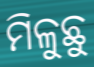
ମିଳୁଛୁ